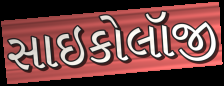
સાઇકોલૉજી